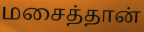
மசைத்தான்